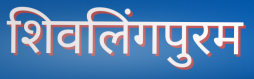
शिवलिंगपुरम